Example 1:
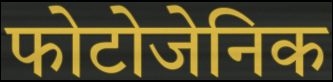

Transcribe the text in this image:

फोटोजेनिक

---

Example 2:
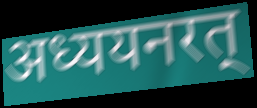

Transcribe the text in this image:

अध्ययनरत्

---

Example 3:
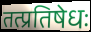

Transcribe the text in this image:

तत्प्रतिषेधः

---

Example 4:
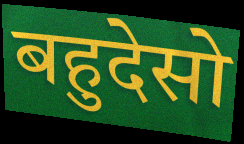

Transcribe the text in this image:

बहुदेसो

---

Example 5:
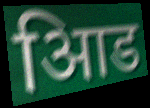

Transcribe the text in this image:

आिड